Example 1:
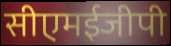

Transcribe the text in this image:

सीएमईजीपी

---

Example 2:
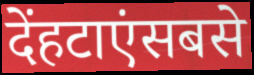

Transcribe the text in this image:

देंहटाएंसबसे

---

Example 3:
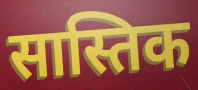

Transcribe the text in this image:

सास्तिक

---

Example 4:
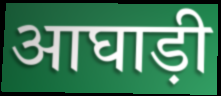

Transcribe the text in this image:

आघाड़ी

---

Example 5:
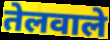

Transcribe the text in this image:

तेलवाले